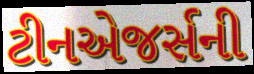
ટીનએજર્સની